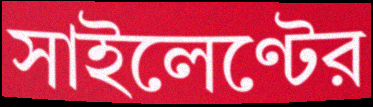
সাইলেণ্টের